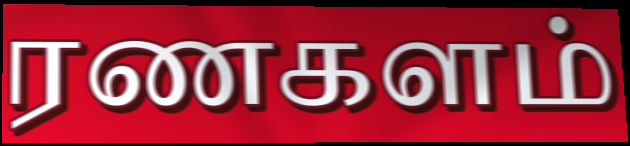
ரணகளம்